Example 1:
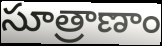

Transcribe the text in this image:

సూత్రాణాం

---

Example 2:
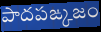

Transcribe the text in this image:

పాదపఙ్కజం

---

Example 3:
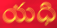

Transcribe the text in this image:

యధి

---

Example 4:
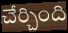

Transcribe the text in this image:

చేర్చింది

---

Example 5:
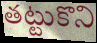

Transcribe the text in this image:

తట్టుకొని